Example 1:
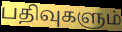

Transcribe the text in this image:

பதிவுகளும்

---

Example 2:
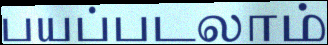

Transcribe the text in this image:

பயப்படலாம்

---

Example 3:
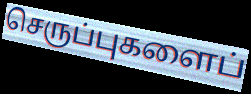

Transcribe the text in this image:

செருப்புகளைப்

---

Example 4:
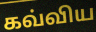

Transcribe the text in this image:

கவ்விய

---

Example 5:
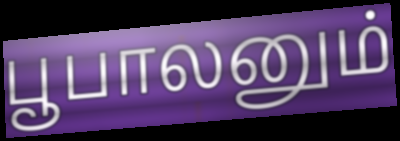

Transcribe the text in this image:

பூபாலனும்